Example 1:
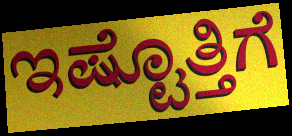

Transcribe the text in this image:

ಇಷ್ಟೊತ್ತಿಗೆ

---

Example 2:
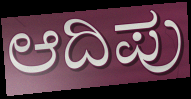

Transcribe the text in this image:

ಆದಿಪು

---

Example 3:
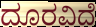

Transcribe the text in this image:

ದೂರವಿದೆ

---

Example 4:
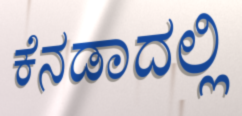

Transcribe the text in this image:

ಕೆನಡಾದಲ್ಲಿ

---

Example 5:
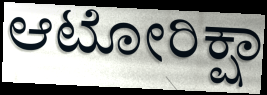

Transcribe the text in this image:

ಆಟೋರಿಕ್ಷಾ